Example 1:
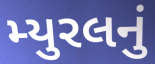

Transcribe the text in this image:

મ્યુરલનું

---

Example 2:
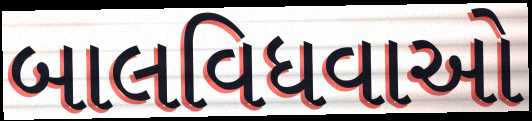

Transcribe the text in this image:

બાલવિધવાઓ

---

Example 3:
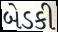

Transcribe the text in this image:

બેડકી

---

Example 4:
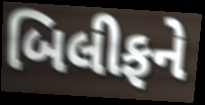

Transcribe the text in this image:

બિલીફને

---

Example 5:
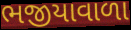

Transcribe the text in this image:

ભજીયાવાળા